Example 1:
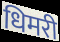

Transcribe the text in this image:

धिमरी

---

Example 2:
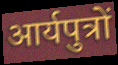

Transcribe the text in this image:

आर्यपुत्रों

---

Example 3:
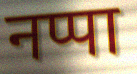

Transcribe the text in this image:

नप्पा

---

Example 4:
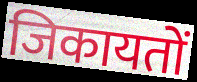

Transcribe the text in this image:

जिकायतों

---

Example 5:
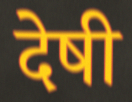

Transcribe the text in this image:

देषी